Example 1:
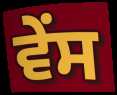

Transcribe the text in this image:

ਵੇਂਸ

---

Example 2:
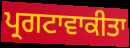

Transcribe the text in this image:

ਪ੍ਰਗਟਾਵਾਕੀਤਾ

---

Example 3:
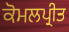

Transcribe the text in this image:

ਕੋਮਲਪ੍ਰੀਤ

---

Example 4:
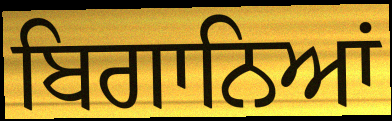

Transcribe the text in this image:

ਬਿਗਾਨਿਆਂ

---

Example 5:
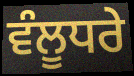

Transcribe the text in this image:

ਵੰਲੂਧਰੇ